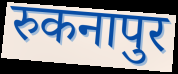
रुकनापुर